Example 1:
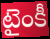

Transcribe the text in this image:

టైంకీ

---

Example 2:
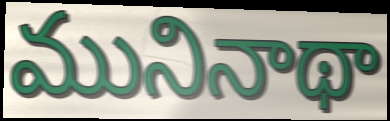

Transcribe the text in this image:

మునినాథా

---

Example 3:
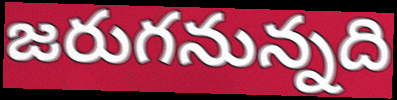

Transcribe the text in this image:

జరుగనున్నది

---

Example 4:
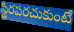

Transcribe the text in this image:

స్థిరపరచుకుంటే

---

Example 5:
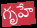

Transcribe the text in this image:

గృహే